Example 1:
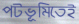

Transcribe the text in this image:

পটভূমিতেই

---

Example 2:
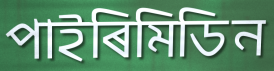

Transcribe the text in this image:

পাইৰিমিডিন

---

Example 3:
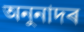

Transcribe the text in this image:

অনুনাদৰ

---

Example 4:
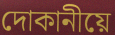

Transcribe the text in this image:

দোকানীয়ে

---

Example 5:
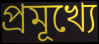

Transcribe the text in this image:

প্ৰমূখ্যে